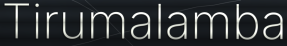
Tirumalamba